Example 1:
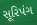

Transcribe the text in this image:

સૂરિપંગ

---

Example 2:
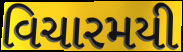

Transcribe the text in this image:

વિચારમયી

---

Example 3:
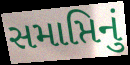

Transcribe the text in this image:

સમાપ્તિનું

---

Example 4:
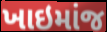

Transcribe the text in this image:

ખાઇમાંજ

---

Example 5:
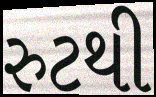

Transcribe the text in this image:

રુટથી